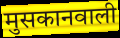
मुसकानवाली